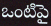
ఒంటిపై